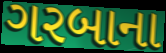
ગરબાના